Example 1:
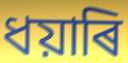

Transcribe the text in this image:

ধয়াৰি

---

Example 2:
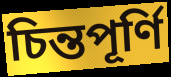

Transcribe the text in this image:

চিন্তপূৰ্ণি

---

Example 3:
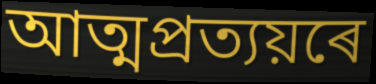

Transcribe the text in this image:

আত্মপ্ৰত্যয়ৰে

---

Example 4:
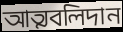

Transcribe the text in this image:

আত্মবলিদান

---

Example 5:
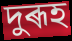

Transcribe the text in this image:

দুৰূহ